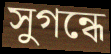
সুগন্ধে